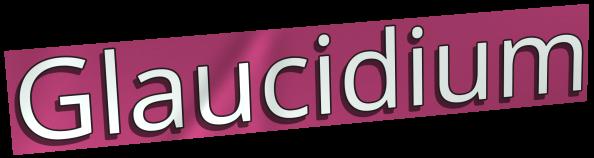
Glaucidium